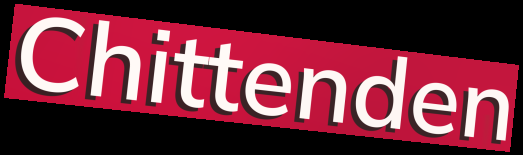
Chittenden